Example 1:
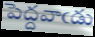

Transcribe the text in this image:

పెద్దవాఁడు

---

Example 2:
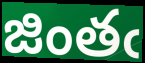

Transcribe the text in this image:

జింతఁ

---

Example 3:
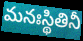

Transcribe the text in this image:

మనఃస్థితినీ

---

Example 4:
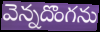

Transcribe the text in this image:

వెన్నదొంగను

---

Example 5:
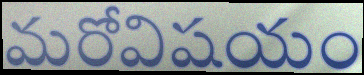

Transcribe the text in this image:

మరోవిషయం